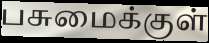
பசுமைக்குள்